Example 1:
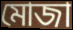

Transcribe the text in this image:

মোজা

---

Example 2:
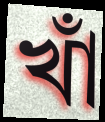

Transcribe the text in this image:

খাঁ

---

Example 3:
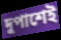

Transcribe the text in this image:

দুপাশেই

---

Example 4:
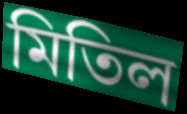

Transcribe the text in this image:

মিতিল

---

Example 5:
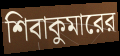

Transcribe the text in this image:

শিবাকুমারের